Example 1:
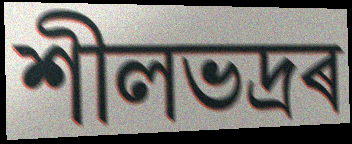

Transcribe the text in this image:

শীলভদ্ৰৰ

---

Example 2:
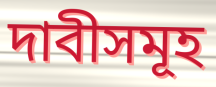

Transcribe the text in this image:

দাবীসমূহ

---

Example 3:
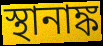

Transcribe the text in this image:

স্থানাঙ্ক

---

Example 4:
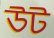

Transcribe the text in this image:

উট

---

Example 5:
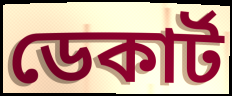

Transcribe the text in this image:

ডেকাৰ্ট